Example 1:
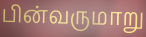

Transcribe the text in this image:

பின்வருமாறு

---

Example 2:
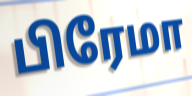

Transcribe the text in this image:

பிரேமா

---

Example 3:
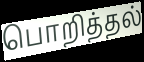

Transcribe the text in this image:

பொறித்தல்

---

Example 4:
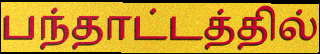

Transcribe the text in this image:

பந்தாட்டத்தில்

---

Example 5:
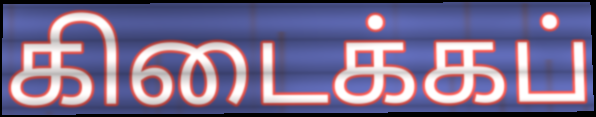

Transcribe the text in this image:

கிடைக்கப்